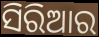
ସିରିଆର